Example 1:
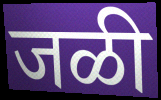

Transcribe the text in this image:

जळी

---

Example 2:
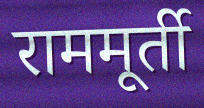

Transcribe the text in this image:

राममूर्ती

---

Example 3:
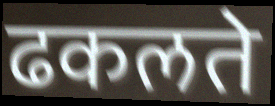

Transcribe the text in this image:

ढकलते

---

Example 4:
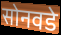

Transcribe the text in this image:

सोनवडे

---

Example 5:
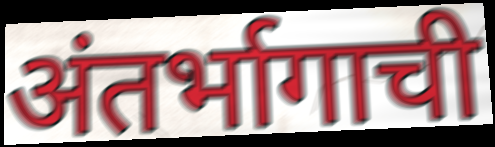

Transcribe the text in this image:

अंतर्भागाची